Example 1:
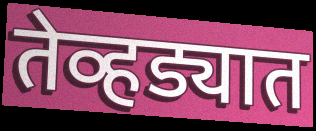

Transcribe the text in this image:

तेव्हड्यात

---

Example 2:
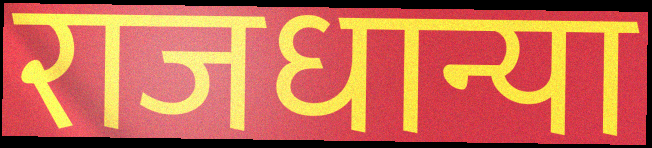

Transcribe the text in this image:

राजधान्या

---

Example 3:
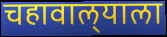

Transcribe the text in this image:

चहावाल्याला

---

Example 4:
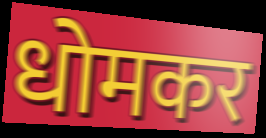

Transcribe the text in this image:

धोमकर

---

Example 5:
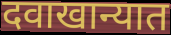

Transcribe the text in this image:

दवाखान्यात